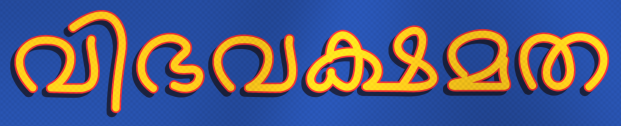
വിഭവക്ഷമത